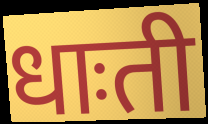
धाःती